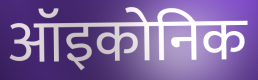
ऑइकोनिक